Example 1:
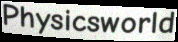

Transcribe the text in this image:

Physicsworld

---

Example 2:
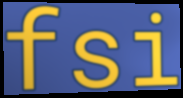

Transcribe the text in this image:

fsi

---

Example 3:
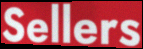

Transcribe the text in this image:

Sellers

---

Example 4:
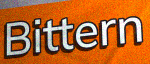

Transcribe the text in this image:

Bittern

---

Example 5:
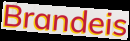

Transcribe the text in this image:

Brandeis